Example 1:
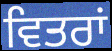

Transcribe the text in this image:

ਵਿਤਰਾਂ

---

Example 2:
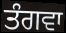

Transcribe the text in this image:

ਤੰਗਵਾ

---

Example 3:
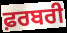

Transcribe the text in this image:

ਫ਼ਰਬਰੀ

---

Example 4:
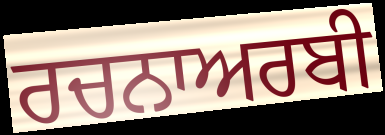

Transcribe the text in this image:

ਰਚਨਾਅਰਬੀ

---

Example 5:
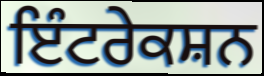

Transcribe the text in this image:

ਇੰਟਰੇਕਸ਼ਨ